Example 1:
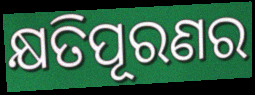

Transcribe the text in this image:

କ୍ଷତିପୂରଣର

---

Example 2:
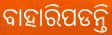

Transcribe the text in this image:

ବାହାରିପଡନ୍ତି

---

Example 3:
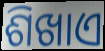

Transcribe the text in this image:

ଶିଖାଏ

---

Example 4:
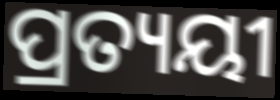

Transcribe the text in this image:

ପ୍ରତ୍ୟୟୀ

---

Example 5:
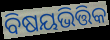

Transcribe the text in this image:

ବିଷୟଭିତ୍ତିକ